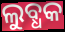
ଲୁବ୍ଧକ